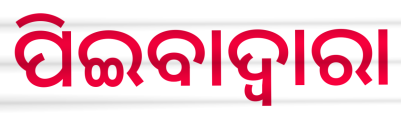
ପିଇବାଦ୍ଵାରା